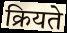
क्रियते